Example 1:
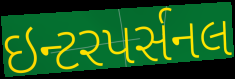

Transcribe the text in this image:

ઇન્ટરપર્સનલ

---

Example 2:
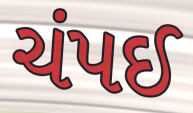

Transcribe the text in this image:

ચંપઈ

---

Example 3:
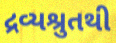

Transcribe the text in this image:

દ્રવ્યશ્રુતથી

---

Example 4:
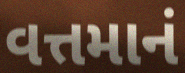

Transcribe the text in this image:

વત્તમાનં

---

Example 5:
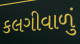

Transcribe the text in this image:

કલગીવાળું